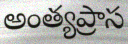
అంత్యప్రాస